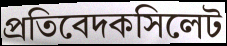
প্রতিবেদকসিলেট